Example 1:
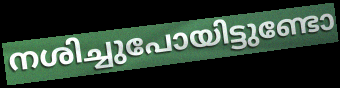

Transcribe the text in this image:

നശിച്ചുപോയിട്ടുണ്ടോ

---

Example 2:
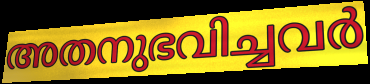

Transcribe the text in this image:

അതനുഭവിച്ചവർ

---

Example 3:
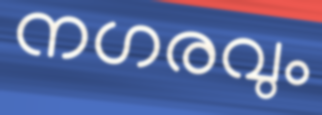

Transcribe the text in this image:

നഗരവും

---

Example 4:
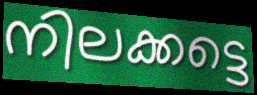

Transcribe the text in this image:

നിലക്കട്ടെ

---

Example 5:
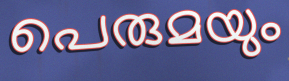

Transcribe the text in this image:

പെരുമയും